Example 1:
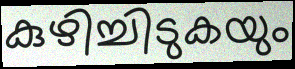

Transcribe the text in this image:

കുഴിച്ചിടുകയും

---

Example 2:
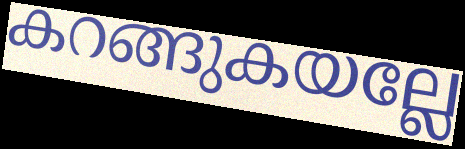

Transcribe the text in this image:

കറങ്ങുകയല്ലേ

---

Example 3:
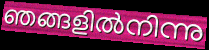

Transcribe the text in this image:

ഞങ്ങളിൽനിന്നു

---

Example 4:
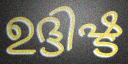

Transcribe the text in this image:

ഉദ്ദിഷ്ട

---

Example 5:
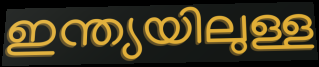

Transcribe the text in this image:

ഇന്ത്യയിലുള്ള